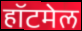
हॉटमेल